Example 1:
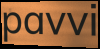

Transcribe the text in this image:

pavvi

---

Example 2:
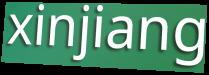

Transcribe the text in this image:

xinjiang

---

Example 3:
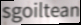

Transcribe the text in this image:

sgoiltean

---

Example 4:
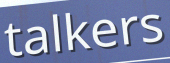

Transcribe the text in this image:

talkers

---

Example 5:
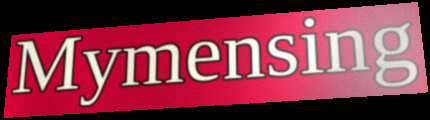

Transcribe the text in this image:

Mymensing